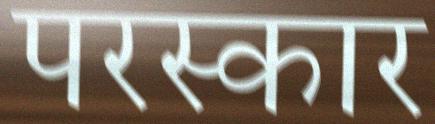
परस्कार